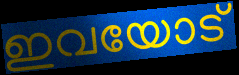
ഇവയോട്